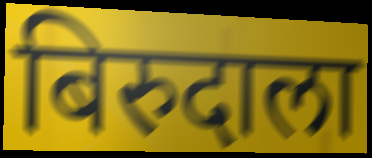
बिरुदाला